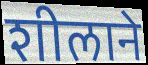
शीलाने